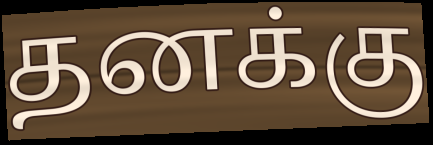
தனக்கு